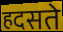
हदसते